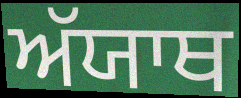
ਅੱਯਾਥ